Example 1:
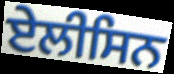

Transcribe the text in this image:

ਏਲੀਸਿਨ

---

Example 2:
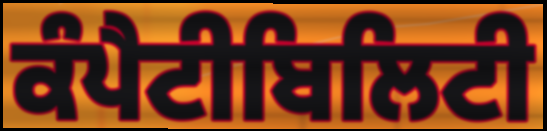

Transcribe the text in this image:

ਕੰਪੈਟੀਬਿਲਿਟੀ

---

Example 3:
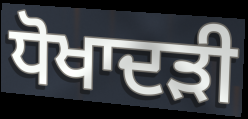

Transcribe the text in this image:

ਧੋਖਾਦੜੀ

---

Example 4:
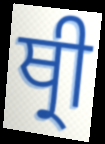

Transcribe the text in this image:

ਥ੍ਰੀ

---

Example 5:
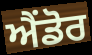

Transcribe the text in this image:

ਐਂਡੋਰ